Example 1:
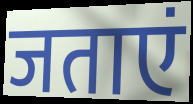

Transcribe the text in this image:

जताएं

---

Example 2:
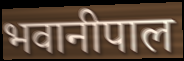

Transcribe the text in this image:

भवानीपाल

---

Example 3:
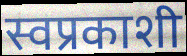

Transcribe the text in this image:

स्वप्रकाशी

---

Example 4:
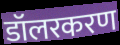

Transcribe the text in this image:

डॉलरकरण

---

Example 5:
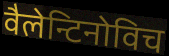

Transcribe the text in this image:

वैलेन्टिनोविच